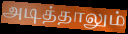
அடித்தாலும்